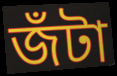
জঁটা